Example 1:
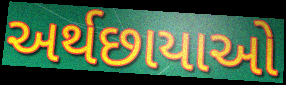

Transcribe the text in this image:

અર્થછાયાઓ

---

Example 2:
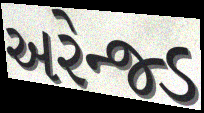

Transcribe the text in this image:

અરેન્જ્ડ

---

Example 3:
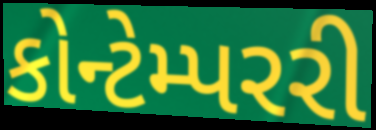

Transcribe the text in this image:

કોન્ટેમ્પરરી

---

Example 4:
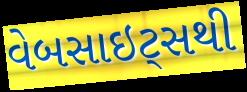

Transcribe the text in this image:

વેબસાઇટ્સથી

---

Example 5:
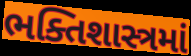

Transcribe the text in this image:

ભક્તિશાસ્ત્રમાં